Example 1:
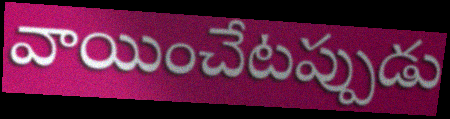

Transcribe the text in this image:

వాయించేటప్పుడు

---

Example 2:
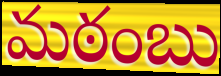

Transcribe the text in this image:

మఠంబు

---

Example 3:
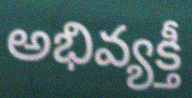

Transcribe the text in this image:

అభివ్యక్తీ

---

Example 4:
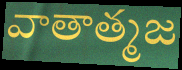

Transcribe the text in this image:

వాతాత్మజ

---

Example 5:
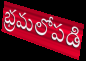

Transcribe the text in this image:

భ్రమలోపడి